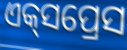
ଏକ୍‍ସପ୍ରେସ